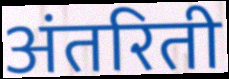
अंतरिती